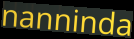
nanninda